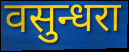
वसुन्धरा